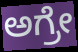
ಅಗ್ರೇ